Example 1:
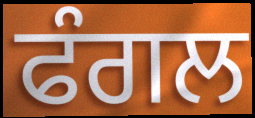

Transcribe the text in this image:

ਫੰਗਲ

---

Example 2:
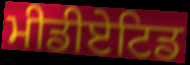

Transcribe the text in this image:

ਮੀਡੀਏਟਿਡ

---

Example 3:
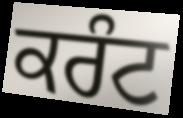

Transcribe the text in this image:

ਕਰੰਟ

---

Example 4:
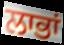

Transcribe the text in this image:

ਲਾਭਾਂ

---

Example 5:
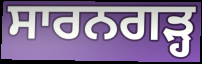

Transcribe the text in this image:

ਸਾਰਨਗੜ੍ਹ